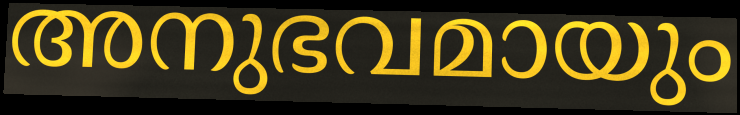
അനുഭവമായും